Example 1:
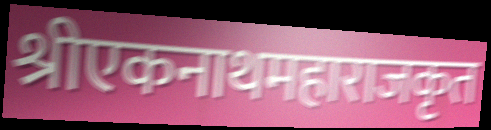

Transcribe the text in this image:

श्रीएकनाथमहाराजकृत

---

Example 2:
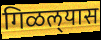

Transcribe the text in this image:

गिळल्यास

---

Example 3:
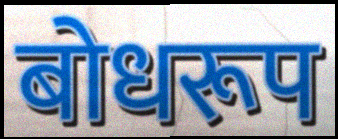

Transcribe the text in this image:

बोधरूप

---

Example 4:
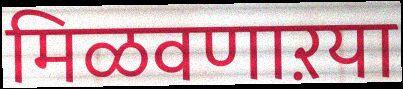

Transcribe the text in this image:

मिळवणाऱया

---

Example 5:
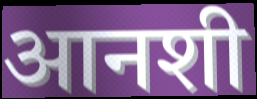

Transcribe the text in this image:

आनशी